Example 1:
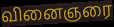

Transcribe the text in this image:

வினைஞரை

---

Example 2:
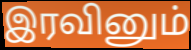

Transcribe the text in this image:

இரவினும்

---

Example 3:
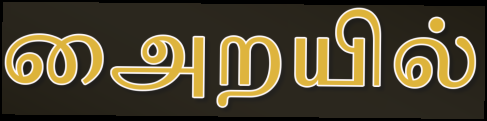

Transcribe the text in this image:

அைறயில்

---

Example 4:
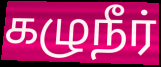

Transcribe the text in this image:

கழுநீர்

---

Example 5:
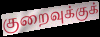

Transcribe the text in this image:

குறைவுக்குக்